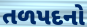
તળપદનો